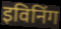
इविनिंग